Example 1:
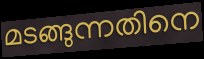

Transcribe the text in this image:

മടങ്ങുന്നതിനെ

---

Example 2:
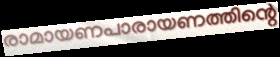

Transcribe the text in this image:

രാമായണപാരായണത്തിന്റെ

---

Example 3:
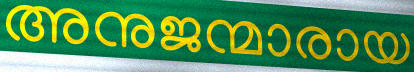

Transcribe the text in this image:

അനുജന്മാരായ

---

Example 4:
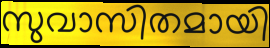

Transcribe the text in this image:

സുവാസിതമായി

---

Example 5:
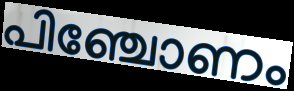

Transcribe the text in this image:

പിഞ്ചോണം